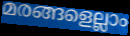
മരങ്ങളെല്ലാം